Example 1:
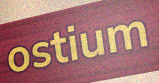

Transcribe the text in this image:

ostium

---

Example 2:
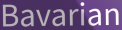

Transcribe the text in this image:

Bavarian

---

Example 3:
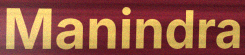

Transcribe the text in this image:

Manindra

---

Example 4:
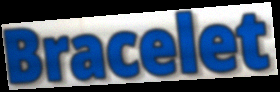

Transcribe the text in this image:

Bracelet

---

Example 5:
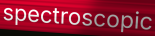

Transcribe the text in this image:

spectroscopic